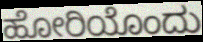
ಹೋರಿಯೊಂದು